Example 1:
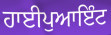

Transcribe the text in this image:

ਹਾਈਪੁਆਇੰਟ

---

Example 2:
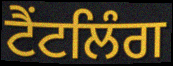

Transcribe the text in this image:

ਟੈਂਟਲਿੰਗ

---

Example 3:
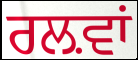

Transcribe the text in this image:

ਰਲ਼ਵਾਂ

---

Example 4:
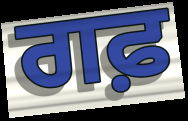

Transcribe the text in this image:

ਗਫ਼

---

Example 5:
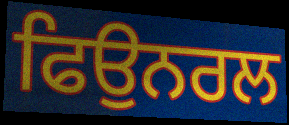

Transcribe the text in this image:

ਫਿਉਨਰਲ